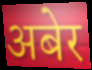
अबेर